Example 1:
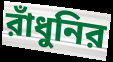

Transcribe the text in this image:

রাঁধুনির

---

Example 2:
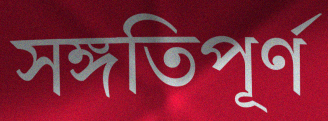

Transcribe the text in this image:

সঙ্গতিপূর্ণ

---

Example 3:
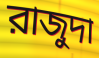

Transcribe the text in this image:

রাজুদা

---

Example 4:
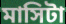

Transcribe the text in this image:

মাসিটা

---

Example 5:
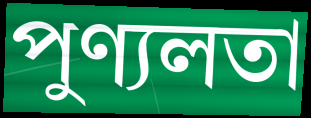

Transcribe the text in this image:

পুণ্যলতা